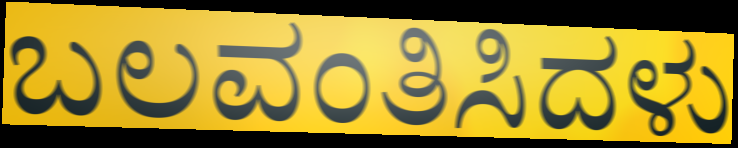
ಬಲವಂತಿಸಿದಳು